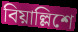
বিয়াল্লিশে